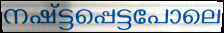
നഷ്ട്ടപ്പെട്ടപോലെ